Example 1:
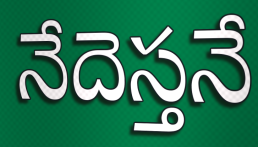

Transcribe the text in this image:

నేదెస్తనే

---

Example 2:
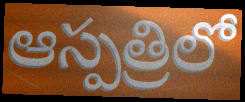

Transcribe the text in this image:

ఆస్పత్రిలో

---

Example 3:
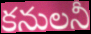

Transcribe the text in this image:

కనులనీ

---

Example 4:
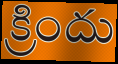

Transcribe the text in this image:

క్రిందు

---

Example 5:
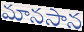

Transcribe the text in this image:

మానసాన